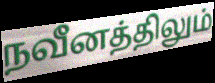
நவீனத்திலும்